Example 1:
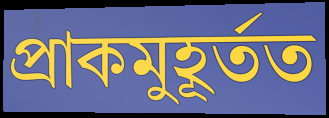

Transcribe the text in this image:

প্ৰাকমুহূৰ্তত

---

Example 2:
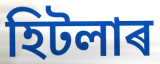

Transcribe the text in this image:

হিটলাৰ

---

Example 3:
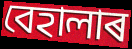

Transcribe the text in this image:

বেহালাৰ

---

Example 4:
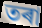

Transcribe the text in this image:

তৰা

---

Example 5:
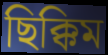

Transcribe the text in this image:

ছিক্কিম